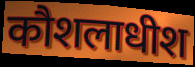
कौशलाधीश